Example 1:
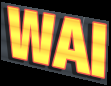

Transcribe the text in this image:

WAI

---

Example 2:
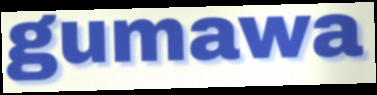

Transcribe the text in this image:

gumawa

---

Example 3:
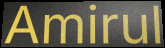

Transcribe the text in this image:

Amirul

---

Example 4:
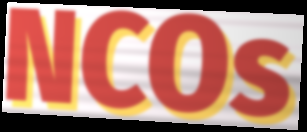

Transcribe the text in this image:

NCOs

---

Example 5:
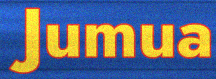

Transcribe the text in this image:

Jumua